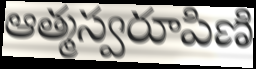
ఆత్మస్వరూపిణి